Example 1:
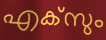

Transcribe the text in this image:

എക്‌സും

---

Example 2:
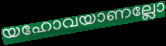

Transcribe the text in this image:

യഹോവയാണല്ലോ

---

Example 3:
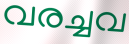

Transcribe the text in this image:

വരച്ചവ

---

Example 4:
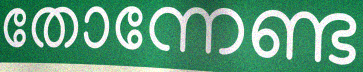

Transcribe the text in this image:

തോന്നേണ്ട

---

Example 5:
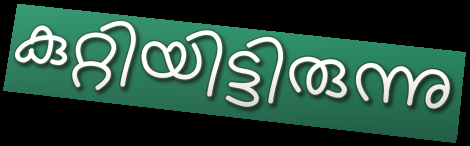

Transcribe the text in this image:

കുറ്റിയിട്ടിരുന്നു